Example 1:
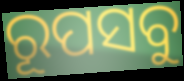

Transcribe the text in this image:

ରୂପସବୁ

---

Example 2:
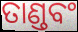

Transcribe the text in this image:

ତାଣ୍ଡବଂ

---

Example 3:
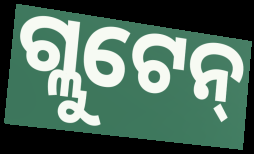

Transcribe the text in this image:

ଗ୍ଲୁଟେନ୍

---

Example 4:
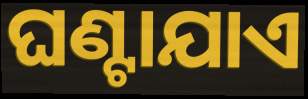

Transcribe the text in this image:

ଘଣ୍ଟାଯାଏ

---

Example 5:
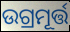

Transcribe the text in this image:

ଉଗ୍ରମୂର୍ତ୍ତ